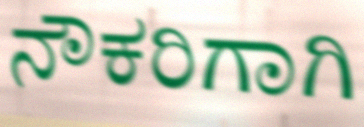
ನೌಕರಿಗಾಗಿ